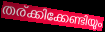
തര്ക്കിക്കേണ്ടിയും